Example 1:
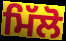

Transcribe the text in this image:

ਮਿੱਲੋ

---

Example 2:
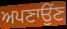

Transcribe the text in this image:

ਅਪਣਾਉਂਣ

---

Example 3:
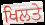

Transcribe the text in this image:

ਖਿਲਤੇ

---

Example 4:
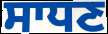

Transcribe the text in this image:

ਸਾਧਣ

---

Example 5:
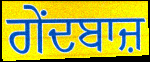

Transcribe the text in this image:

ਗੇਂਦਬਾਜ਼